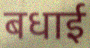
बधाई